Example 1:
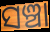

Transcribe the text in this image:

ସଞ୍ଚା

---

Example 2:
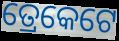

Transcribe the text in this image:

ତ୍ରେକେଟେ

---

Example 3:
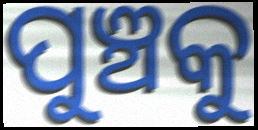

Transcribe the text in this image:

ପୁଞ୍ଚକୁ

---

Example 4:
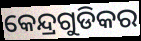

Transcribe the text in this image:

କେନ୍ଦ୍ରଗୁଡିକର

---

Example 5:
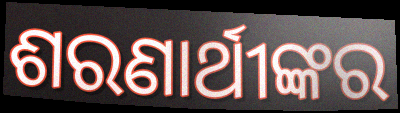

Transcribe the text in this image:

ଶରଣାର୍ଥୀଙ୍କର